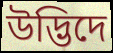
উদ্ভিদে